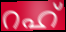
റഹ്